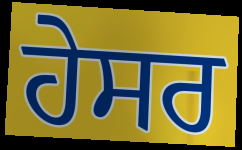
ਹੇਸਰ